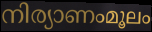
നിര്യാണംമൂലം